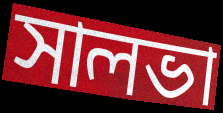
সালভা